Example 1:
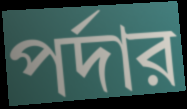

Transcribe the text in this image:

পর্দার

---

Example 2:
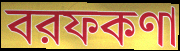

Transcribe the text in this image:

বরফকণা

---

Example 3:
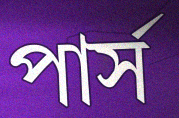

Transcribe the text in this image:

পার্স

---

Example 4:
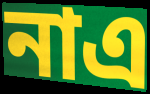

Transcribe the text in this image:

নাএ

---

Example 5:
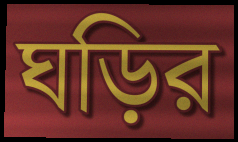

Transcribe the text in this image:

ঘড়ির